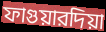
ফাগুয়ারদিয়া